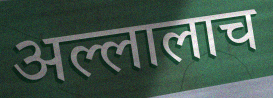
अल्लालाच